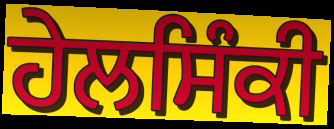
ਹੇਲਸਿੰਕੀ